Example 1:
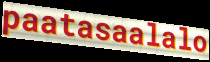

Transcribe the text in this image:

paatasaalalo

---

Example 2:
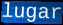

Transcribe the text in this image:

lugar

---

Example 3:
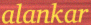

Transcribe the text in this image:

alankar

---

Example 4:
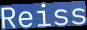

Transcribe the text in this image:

Reiss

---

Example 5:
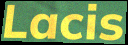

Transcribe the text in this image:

Lacis